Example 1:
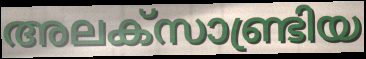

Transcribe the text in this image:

അലക്സാണ്ട്രിയ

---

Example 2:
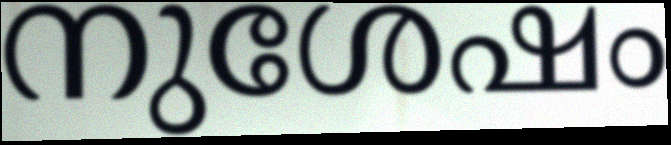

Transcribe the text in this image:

നുശേഷം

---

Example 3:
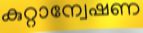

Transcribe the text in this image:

കുറ്റാന്വേഷണ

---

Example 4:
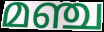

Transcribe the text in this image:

മഞ്ച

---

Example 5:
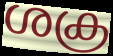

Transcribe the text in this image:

ശക്ര